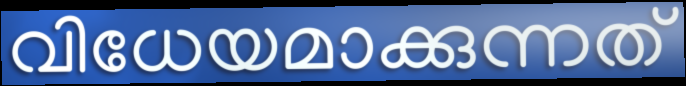
വിധേയമാക്കുന്നത്